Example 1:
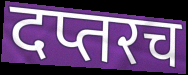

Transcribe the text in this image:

दप्तरच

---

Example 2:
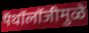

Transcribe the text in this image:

पॅथॉलॉजीमुळे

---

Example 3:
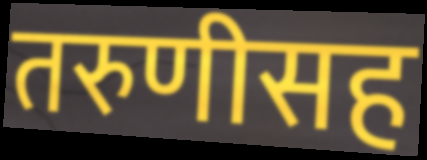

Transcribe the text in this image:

तरुणीसह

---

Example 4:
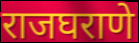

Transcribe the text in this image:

राजघराणे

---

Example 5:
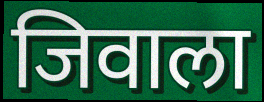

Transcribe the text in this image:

जिवाला